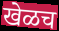
खेळच